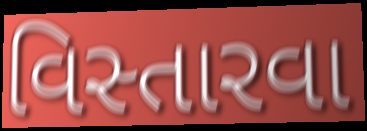
વિસ્તારવા